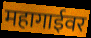
महागाईवर